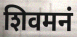
शिवमनं